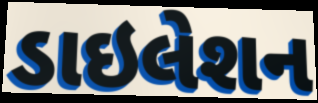
ડાઇલેશન